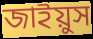
জাইয়ুস